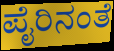
ಪೈರಿನಂತೆ